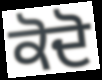
ਕੋਦੋ